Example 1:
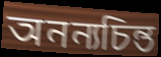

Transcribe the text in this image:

অনন্যচিন্ত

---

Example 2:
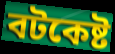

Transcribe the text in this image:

বটকেষ্ট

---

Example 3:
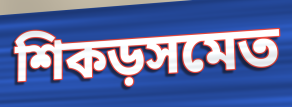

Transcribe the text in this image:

শিকড়সমেত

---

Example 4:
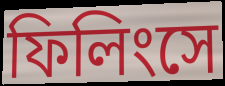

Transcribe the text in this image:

ফিলিংসে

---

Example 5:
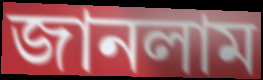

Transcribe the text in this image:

জানলাম